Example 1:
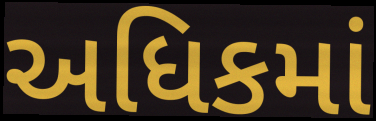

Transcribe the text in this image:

અધિકમાં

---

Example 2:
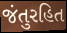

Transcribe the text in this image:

જંતુરહિત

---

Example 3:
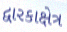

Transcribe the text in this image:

દ્વારકાક્ષેત્ર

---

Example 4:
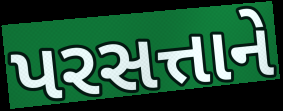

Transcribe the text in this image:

પરસત્તાને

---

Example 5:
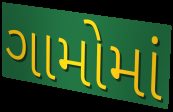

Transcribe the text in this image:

ગામોમાં